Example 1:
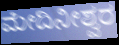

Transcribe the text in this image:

ಮೇದಿನೀಶ್ವರ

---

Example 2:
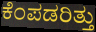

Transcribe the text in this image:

ಕೆಂಪಡರಿತ್ತು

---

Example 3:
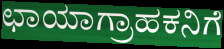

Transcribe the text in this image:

ಛಾಯಾಗ್ರಾಹಕನಿಗೆ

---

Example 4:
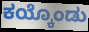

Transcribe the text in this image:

ಕಯ್ಕೊಂಡು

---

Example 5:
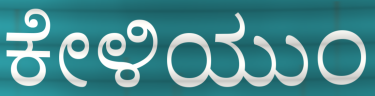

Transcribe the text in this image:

ಕೇಳಿಯುಂ